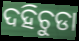
ଦହିଚୁଡା